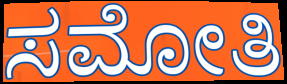
ಸಮೋತಿ